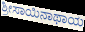
ಶ್ರೀಸಾಯಿನಾಥಾಯ